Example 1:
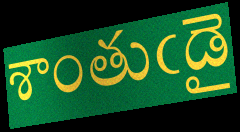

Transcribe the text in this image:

శాంతుఁడై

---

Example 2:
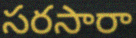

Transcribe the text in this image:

సరసారా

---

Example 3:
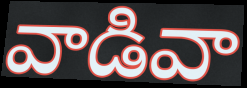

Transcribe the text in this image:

వాడివా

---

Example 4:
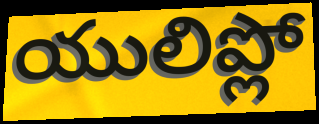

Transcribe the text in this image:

యులిప్లో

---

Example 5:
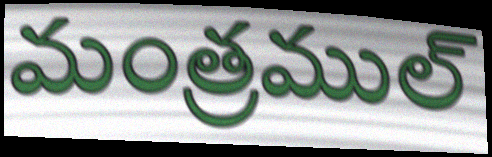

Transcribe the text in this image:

మంత్రముల్